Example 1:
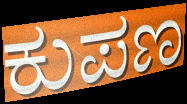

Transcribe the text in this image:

ಕುಪಣ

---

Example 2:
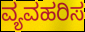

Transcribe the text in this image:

ವ್ಯವಹರಿಸ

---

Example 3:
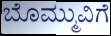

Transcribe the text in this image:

ಬೊಮ್ಮುವಿಗೆ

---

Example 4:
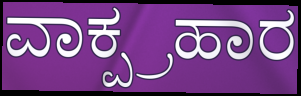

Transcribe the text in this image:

ವಾಕ್ಪ್ರಹಾರ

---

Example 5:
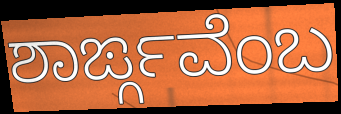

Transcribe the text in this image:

ಶಾರ್ಙ್ಗವೆಂಬ